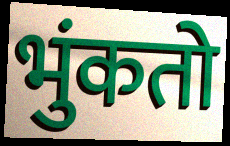
भुंकतो